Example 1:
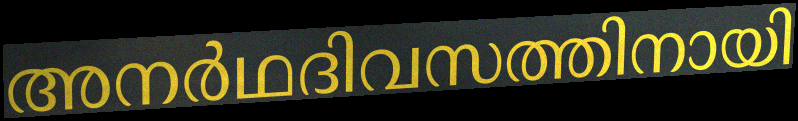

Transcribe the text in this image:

അനർഥദിവസത്തിനായി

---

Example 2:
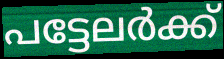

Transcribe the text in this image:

പട്ടേലർക്ക്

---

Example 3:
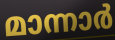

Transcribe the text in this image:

മാന്നാർ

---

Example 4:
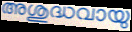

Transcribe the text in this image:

അശുദ്ധവായു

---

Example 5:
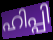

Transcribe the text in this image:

ഹിപ്പി